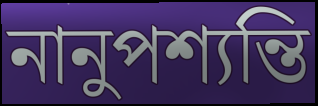
নানুপশ্যন্তি